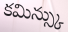
కమిన్స్కు